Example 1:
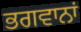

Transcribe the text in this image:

ਭਗਵਾਨਾਂ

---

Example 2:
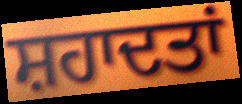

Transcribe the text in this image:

ਸ਼ਹਾਦਤਾਂ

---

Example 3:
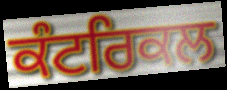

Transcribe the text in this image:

ਕੰਟਰਿਕਲ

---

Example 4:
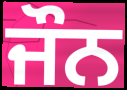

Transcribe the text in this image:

ਜੌਨ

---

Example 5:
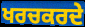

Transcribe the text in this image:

ਖਰਚਕਰਦੇ